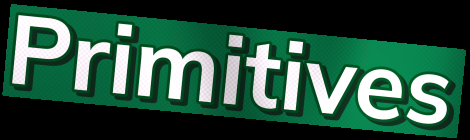
Primitives